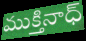
ముక్తినాధ్